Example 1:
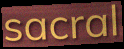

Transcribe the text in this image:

sacral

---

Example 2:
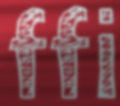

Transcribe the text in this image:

ffi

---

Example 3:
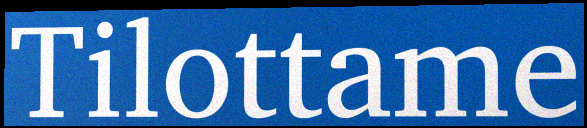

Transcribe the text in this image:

Tilottame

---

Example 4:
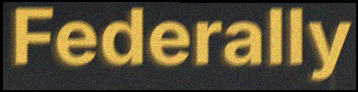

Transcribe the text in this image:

Federally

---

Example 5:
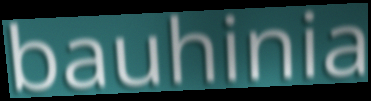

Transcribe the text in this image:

bauhinia